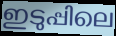
ഇടുപ്പിലെ